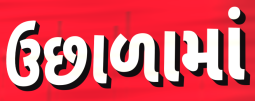
ઉછાળામાં